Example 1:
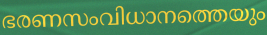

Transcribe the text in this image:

ഭരണസംവിധാനത്തെയും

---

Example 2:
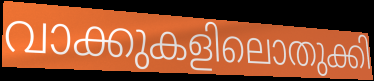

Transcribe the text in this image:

വാക്കുകളിലൊതുക്കി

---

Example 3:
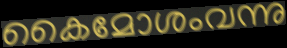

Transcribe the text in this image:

കൈമോശംവന്നു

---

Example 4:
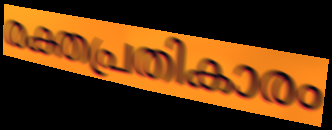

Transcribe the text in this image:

രക്തപ്രതികാരം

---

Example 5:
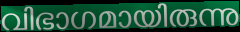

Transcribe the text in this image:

വിഭാഗമായിരുന്നു